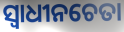
ସ୍ବାଧୀନଚେତା